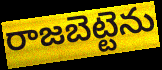
రాజబెట్టెను